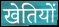
खेतियों